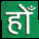
होँ